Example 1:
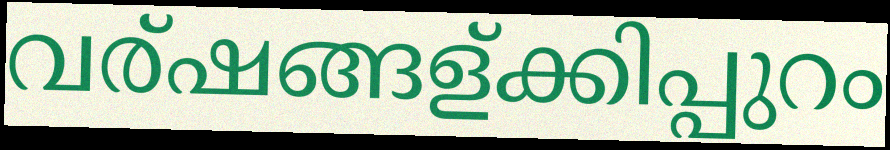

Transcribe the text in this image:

വര്ഷങ്ങള്ക്കിപ്പുറം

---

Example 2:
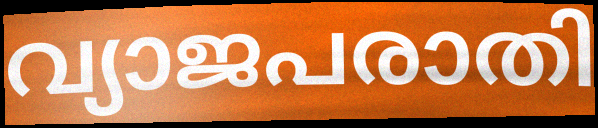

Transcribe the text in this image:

വ്യാജപരാതി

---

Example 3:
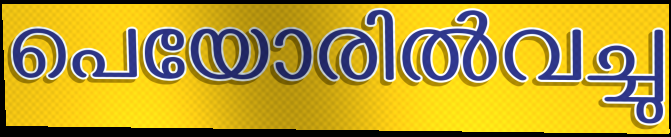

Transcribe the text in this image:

പെയോരിൽവച്ചു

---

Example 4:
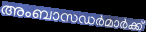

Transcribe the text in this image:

അംബാസഡർമാർക്ക്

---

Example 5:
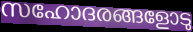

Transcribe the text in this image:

സഹോദരങ്ങളോടു